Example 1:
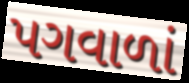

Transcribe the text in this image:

પગવાળાં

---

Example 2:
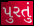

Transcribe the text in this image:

પુરતું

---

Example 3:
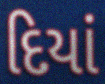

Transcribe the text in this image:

દિયાં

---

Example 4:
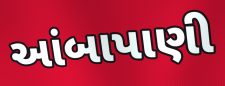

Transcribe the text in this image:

આંબાપાણી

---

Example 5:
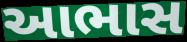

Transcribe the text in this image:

આભાસ